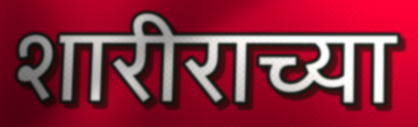
शारीराच्या